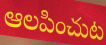
ఆలపించుట